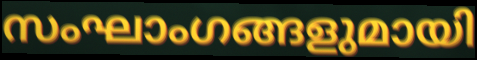
സംഘാംഗങ്ങളുമായി